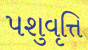
પશુવૃત્તિ